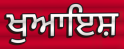
ਖੁਆਇਸ਼